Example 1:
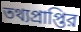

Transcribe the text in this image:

তথ্যপ্রাপ্তির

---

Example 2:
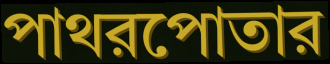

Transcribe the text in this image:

পাথরপোতার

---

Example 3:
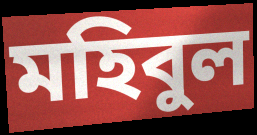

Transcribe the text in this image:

মহিবুল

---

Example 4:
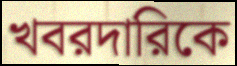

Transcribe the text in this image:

খবরদারিকে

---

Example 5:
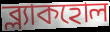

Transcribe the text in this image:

ব্ল্যাকহোল